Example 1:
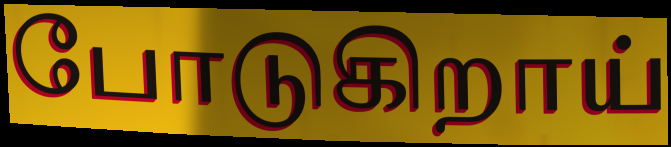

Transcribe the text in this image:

போடுகிறாய்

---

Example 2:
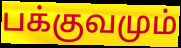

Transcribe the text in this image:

பக்குவமும்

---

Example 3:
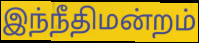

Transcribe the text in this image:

இந்நீதிமன்றம்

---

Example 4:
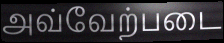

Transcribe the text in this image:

அவ்வேற்படை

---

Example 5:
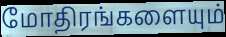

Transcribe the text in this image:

மோதிரங்களையும்